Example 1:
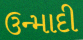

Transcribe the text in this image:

ઉન્માદી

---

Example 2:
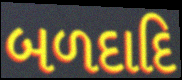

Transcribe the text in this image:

બળદાદિ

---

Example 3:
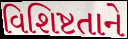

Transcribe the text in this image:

વિશિષ્ટતાને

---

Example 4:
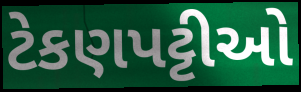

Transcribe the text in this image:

ટેકણપટ્ટીઓ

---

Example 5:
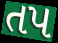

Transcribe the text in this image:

તપ